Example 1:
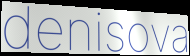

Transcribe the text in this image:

denisova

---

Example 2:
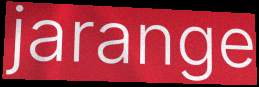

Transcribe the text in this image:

jarange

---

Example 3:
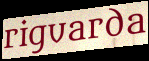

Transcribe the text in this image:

riguarda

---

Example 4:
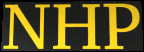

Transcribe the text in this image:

NHP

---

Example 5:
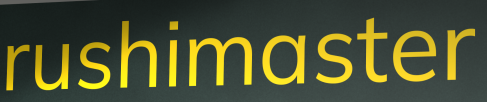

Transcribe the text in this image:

rushimaster